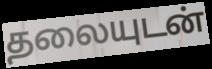
தலையுடன்